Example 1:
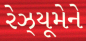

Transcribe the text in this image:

રેઝ્યૂમેને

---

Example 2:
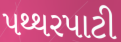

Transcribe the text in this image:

પથ્થરપાટી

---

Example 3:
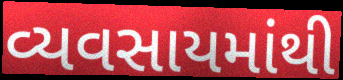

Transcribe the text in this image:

વ્યવસાયમાંથી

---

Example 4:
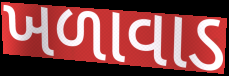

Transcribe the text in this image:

ખળાવાડ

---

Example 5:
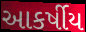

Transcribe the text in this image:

આકર્ષીય